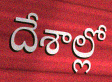
దేశాల్లో